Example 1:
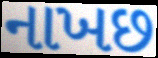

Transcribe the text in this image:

નાખછ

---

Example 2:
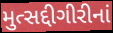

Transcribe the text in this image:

મુત્સદ્દીગીરીનાં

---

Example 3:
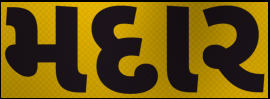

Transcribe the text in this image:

મદાર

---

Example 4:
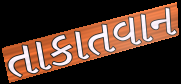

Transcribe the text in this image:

તાકાતવાન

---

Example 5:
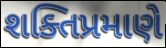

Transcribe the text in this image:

શક્તિપ્રમાણે